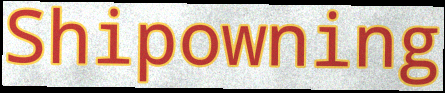
Shipowning